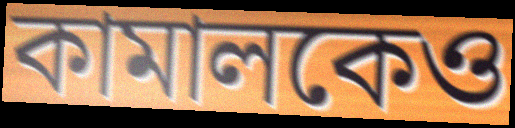
কামালকেও